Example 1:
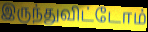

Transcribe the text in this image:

இருந்துவிட்டோம்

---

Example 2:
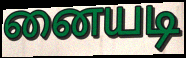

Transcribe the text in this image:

னையடி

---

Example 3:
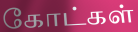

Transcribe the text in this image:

கோட்கள்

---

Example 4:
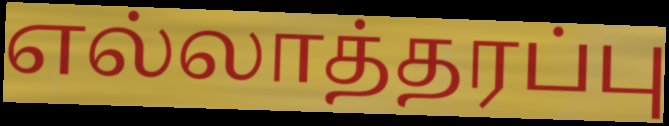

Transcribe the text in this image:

எல்லாத்தரப்பு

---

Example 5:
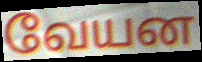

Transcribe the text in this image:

வேயன